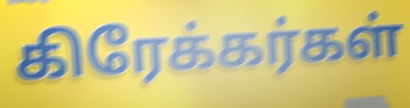
கிரேக்கர்கள்